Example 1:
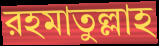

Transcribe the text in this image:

রহমাতুল্লাহ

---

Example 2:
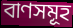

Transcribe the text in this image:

বাণসমূহ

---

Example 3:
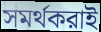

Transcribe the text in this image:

সমর্থকরাই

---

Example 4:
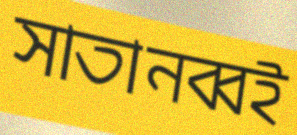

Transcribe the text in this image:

সাতানব্বই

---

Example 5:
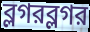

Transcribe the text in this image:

ব্লগরব্লগর